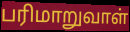
பரிமாறுவாள்